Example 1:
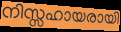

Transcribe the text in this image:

നിസ്സഹായരായി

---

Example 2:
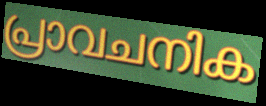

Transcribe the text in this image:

പ്രാവചനിക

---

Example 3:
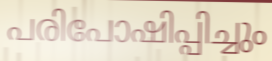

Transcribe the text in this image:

പരിപോഷിപ്പിച്ചും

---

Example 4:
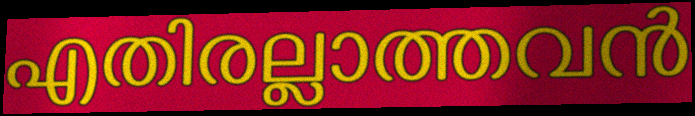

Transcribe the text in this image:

എതിരല്ലാത്തവൻ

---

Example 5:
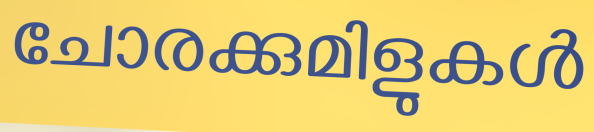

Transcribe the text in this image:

ചോരക്കുമിളുകൾ